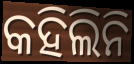
କହିଲିନି